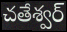
చతేశ్వర్